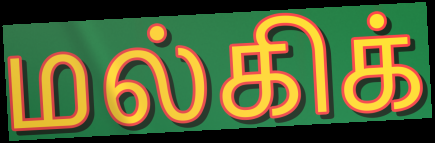
மல்கிக்